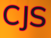
CJS